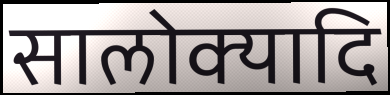
सालोक्यादि